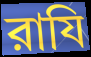
রাযি